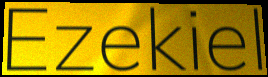
Ezekiel